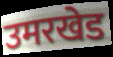
उमरखेड